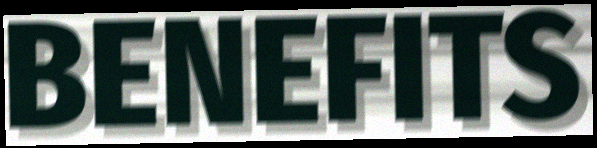
BENEFITS